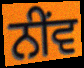
ਨੀਂਵ